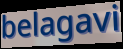
belagavi